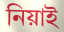
নিয়াই